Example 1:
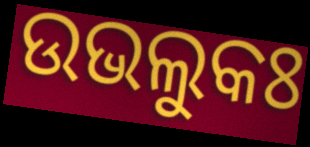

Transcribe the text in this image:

ଉଭଲୁକଃ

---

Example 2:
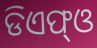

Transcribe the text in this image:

ଡିଏଫ୍ଓ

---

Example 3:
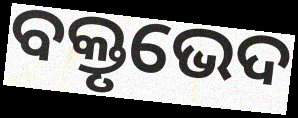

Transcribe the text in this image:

ବକ୍ତୃଭେଦ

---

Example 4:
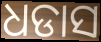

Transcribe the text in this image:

ଧଡାସ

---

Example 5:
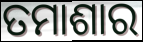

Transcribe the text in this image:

ତମାଶାର